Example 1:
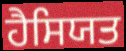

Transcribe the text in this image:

ਹੈਸਿਯਤ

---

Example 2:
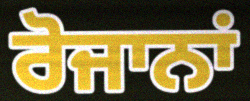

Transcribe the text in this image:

ਰੋਜਾਨਾਂ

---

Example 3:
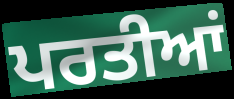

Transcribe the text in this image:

ਪਰਤੀਆਂ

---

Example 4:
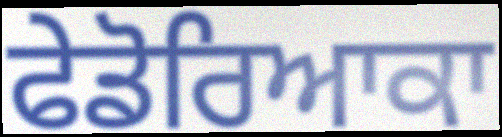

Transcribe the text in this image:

ਫੇਡੋਰਿਆਕਾ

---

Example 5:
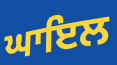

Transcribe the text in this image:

ਘਾਇਲ